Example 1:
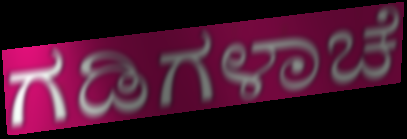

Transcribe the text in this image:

ಗಡಿಗಳಾಚೆ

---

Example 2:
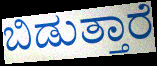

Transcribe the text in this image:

ಬಿಡುತ್ತಾರೆ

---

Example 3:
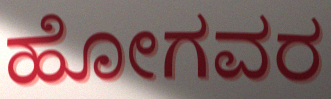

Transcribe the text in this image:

ಹೋಗವರ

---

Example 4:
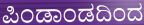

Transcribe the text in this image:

ಪಿಂಡಾಂಡದಿಂದ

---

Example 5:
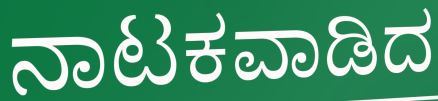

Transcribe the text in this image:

ನಾಟಕವಾಡಿದ